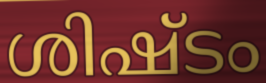
ശിഷ്ടം